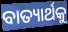
ବାତ୍ୟାର୍ଥକୁ